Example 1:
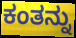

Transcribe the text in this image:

ಕಂತನ್ನು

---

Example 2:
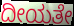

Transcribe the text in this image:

ದೀಯತೇ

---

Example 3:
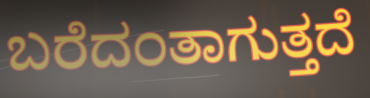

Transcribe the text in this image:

ಬರೆದಂತಾಗುತ್ತದೆ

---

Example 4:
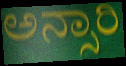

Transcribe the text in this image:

ಅನ್ಸಾರಿ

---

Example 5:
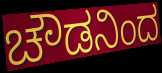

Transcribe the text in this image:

ಚೌಡನಿಂದ